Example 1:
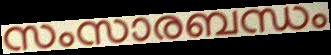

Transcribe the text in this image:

സംസാരബന്ധം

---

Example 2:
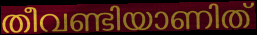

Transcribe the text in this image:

തീവണ്ടിയാണിത്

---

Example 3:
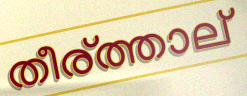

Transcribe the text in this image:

തീര്ത്താല്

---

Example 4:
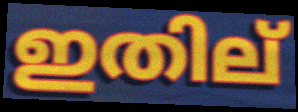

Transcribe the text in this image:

ഇതില്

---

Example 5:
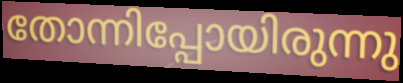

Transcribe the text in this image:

തോന്നിപ്പോയിരുന്നു